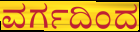
ವರ್ಗದಿಂದ